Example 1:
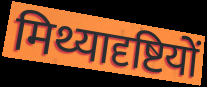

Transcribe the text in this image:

मिथ्यादृष्टियों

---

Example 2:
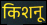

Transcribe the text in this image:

किशनू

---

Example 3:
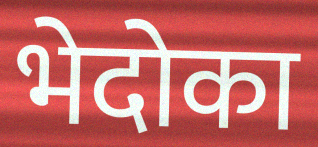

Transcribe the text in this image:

भेदोका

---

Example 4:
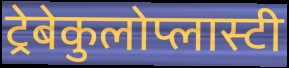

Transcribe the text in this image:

ट्रेबेकुलोप्लास्टी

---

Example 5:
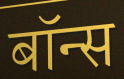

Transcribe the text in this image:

बॉन्स